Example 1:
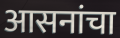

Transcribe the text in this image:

आसनांचा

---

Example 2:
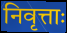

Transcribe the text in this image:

निवृत्ताः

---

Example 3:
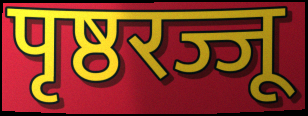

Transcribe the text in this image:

पृष्ठरज्जू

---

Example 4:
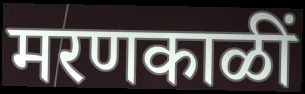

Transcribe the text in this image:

मरणकाळीं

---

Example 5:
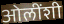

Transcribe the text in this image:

ओलींशी